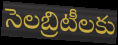
సెలబ్రిటీలకు